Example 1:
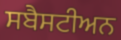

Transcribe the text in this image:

ਸਬੈਸਟੀਅਨ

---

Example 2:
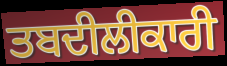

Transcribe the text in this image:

ਤਬਦੀਲੀਕਾਰੀ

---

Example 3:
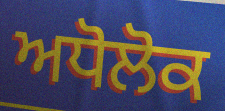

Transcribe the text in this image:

ਅਧੋਲੋਕ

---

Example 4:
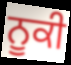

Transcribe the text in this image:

ਨੂਕੀ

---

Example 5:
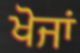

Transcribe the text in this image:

ਖੋਜਾਂ